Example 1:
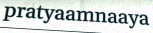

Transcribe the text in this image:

pratyaamnaaya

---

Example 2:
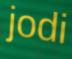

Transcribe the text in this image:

jodi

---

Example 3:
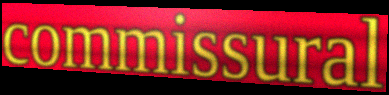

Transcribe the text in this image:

commissural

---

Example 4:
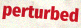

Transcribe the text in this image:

perturbed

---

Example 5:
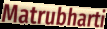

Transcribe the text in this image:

Matrubharti